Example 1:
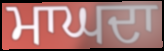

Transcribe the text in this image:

ਮਾਘਦਾ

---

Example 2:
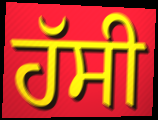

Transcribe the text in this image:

ਹੱਸੀ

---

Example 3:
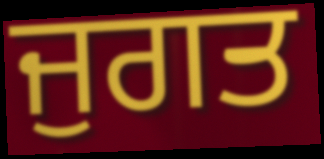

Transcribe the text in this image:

ਜੁਗਤ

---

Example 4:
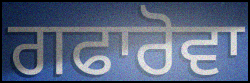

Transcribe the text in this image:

ਗਫਾਰੋਵਾ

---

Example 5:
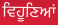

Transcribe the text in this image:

ਵਿਹੂਣਿਆਂ